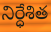
నిర్ధేశిత